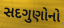
સદગુણોનો